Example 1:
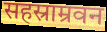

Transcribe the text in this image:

सहस्राम्रवन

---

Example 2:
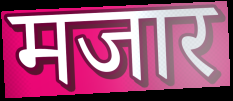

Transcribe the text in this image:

मजार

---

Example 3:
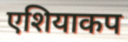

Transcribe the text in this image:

एशियाकप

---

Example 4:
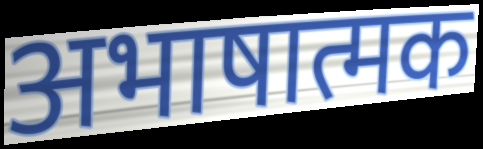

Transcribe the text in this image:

अभाषात्मक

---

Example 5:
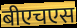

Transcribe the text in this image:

बीएचएस